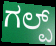
ಗಲ್ಪ್